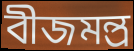
বীজমন্ত্ৰ